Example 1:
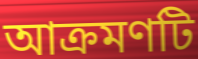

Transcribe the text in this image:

আক্রমণটি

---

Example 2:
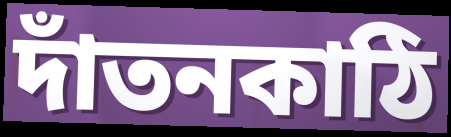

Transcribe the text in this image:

দাঁতনকাঠি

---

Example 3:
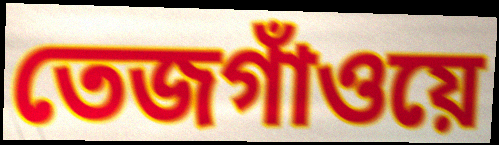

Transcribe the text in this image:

তেজগাঁওয়ে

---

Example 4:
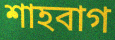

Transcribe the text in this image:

শাহবাগ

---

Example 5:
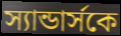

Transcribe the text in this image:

স্যান্ডার্সকে